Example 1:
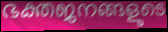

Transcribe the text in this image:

ഭക്തജനങ്ങളുടെ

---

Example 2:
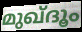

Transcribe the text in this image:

മുഖ്ദൂം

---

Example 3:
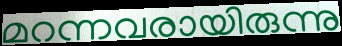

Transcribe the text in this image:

മറന്നവരായിരുന്നു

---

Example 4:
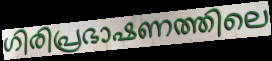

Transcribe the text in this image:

ഗിരിപ്രഭാഷണത്തിലെ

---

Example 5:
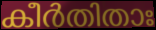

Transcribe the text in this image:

കീർതിതാഃ